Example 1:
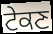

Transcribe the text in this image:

ਟੇਕਣ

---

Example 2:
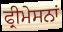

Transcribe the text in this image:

ਫ੍ਰੀਮੇਸਨਾਂ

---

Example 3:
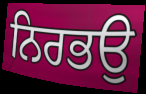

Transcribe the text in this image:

ਨਿਰਭਉ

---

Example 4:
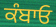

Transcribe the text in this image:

ਕੰਬਾਓ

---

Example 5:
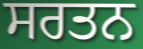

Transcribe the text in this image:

ਸਰਤਨ